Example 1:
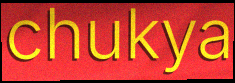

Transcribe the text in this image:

chukya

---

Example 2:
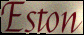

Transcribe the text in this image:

Eston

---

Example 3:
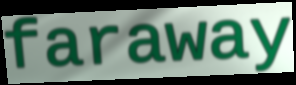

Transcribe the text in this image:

faraway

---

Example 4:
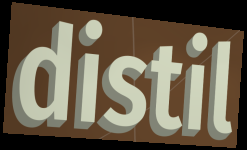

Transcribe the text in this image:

distil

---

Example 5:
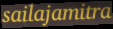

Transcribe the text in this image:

sailajamitra